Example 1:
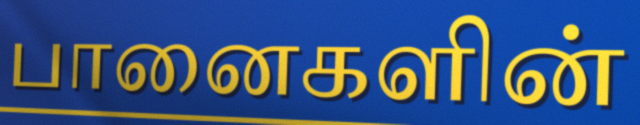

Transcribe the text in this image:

பானைகளின்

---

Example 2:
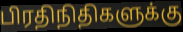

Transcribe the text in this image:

பிரதிநிதிகளுக்கு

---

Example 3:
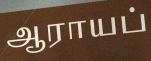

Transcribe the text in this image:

ஆராயப்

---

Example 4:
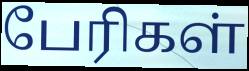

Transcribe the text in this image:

பேரிகள்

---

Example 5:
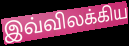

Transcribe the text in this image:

இவ்விலக்கிய